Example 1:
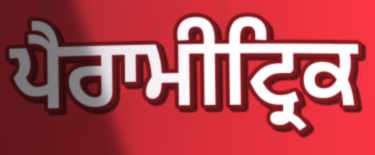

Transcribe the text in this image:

ਪੈਰਾਮੀਟ੍ਰਿਕ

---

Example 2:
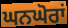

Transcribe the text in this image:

ਘਨਘੋਰਾਂ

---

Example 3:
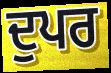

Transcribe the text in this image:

ਦੁਪਰ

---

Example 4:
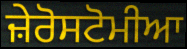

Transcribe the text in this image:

ਜ਼ੇਰੋਸਟੋਮੀਆ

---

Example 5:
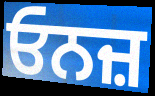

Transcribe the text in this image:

ਓਨਜ਼